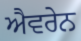
ਐਵਰੇਨ